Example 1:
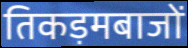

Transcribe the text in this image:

तिकड़मबाजों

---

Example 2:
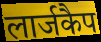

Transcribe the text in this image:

लार्जकैप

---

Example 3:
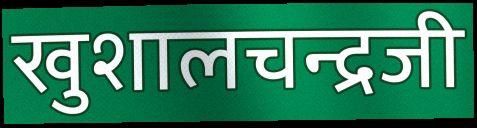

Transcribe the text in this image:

खुशालचन्द्रजी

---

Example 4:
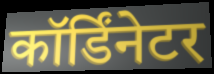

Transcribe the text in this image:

कॉर्डिंनेटर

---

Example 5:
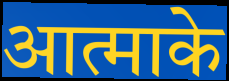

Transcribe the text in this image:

आत्माके